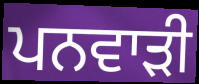
ਪਨਵਾੜੀ